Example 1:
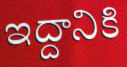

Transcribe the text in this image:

ఇద్దానికి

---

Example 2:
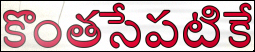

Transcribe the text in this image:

కొంతసేపటికే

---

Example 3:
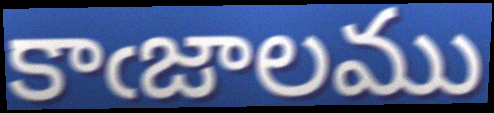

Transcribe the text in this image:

కాఁజాలము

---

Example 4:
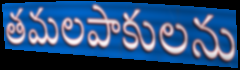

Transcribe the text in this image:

తమలపాకులను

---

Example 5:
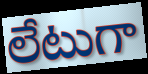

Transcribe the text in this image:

లేటుగా